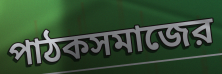
পাঠকসমাজের